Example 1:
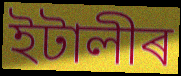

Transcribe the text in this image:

ইটালীৰ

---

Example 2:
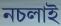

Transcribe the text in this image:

নচলাই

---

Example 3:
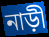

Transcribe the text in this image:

নাড়ী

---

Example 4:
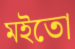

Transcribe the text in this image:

মইতো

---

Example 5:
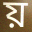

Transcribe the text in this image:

য়